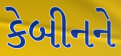
કેબીનને